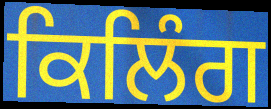
ਕਿਲਿੰਗ